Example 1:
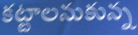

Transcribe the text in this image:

కట్టాలనుకున్న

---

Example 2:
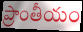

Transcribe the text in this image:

ప్రాంతీయం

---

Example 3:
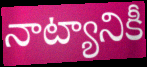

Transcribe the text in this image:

నాట్యానికీ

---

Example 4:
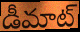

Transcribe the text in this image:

డీమాట్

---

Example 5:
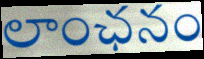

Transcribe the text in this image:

లాంఛనం